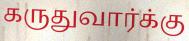
கருதுவார்க்கு